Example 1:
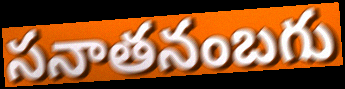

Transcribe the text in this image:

సనాతనంబగు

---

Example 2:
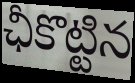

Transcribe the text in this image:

ఛీకొట్టిన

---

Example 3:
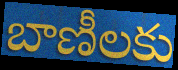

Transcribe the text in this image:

బాణీలకు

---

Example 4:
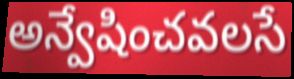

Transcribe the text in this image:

అన్వేషించవలసే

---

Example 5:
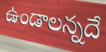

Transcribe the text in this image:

ఉండాలన్నదే